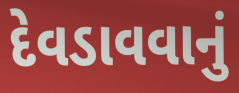
દેવડાવવાનું